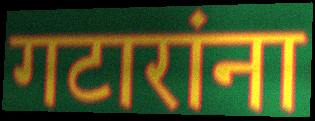
गटारांना